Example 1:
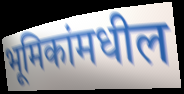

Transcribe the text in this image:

भूमिकांमधील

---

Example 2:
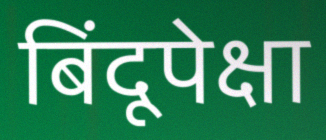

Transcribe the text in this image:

बिंदूपेक्षा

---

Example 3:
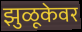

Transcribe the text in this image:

झुळूकेवर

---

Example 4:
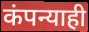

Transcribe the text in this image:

कंपन्याही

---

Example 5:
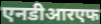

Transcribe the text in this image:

एनडीआरएफ